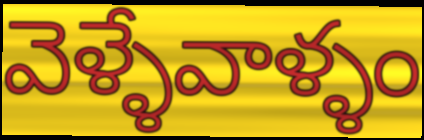
వెళ్ళేవాళ్ళం